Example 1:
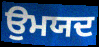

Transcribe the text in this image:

ਉਮਯਦ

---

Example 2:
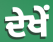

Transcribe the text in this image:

ਦੇਖੇਂ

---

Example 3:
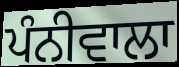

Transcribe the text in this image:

ਪੰਨੀਵਾਲਾ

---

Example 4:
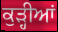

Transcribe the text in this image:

ਕੁੜ੍ਹੀਆਂ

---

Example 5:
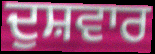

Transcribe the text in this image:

ਦੁਸ਼ਵਾਰ